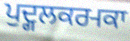
ਪੁਦ੍ਗਲਕਰ੍ਮਕਾ